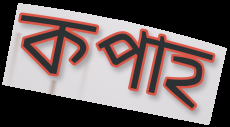
কপাহ